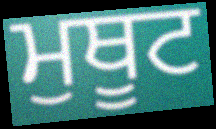
ਮੁਥੂਟ